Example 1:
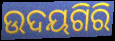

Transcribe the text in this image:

ଉଦୟଗିରି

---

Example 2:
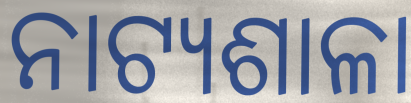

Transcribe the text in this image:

ନାଟ୍ୟଶାଳା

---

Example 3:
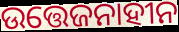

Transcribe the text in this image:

ଉତ୍ତେଜନାହୀନ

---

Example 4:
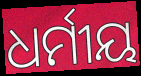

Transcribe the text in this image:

ଧର୍ମୀୟ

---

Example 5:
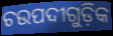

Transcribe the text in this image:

ଚଉପଦୀଗୁଡ଼ିକ